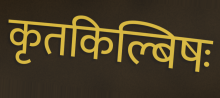
कृतकिल्बिषः